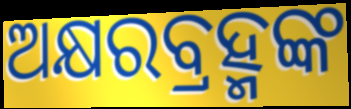
ଅକ୍ଷରବ୍ରହ୍ମଙ୍କ